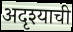
अदृश्याची